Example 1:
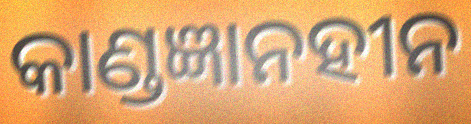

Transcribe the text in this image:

କାଣ୍ଡଜ୍ଞାନହୀନ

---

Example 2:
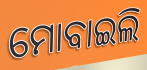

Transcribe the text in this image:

ମୋବାଇଲି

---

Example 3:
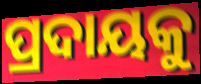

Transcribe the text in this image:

ପ୍ରଦାୟକୁ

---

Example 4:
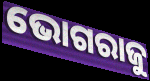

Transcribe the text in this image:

ଭୋଗରାଜୁ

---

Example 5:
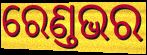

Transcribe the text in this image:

ରେଣ୍ଡଭର